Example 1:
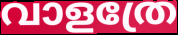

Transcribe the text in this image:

വാളത്രേ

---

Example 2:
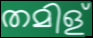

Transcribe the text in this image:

തമിള്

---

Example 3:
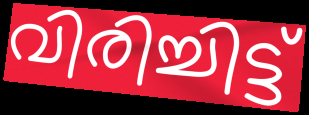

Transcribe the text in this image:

വിരിച്ചിട്ട്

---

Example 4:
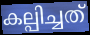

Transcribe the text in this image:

കല്പിച്ചത്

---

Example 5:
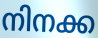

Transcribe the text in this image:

നിനക്ക